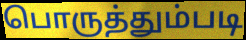
பொருத்தும்படி